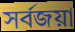
সৰ্বজয়া